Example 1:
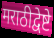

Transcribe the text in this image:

मराठीद्वेष्टे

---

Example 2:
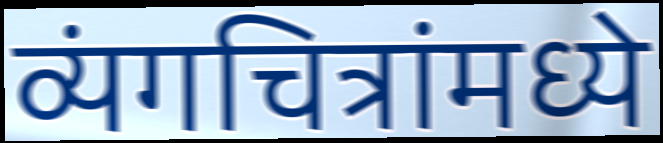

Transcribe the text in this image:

व्यंगचित्रांमध्ये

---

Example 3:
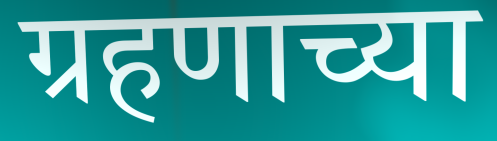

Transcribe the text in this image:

ग्रहणाच्या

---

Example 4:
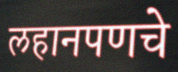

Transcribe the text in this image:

लहानपणचे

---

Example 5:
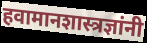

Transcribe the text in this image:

हवामानशास्त्रज्ञांनी